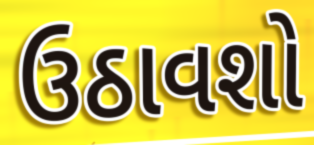
ઉઠાવશો